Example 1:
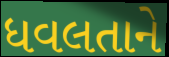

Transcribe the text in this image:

ધવલતાને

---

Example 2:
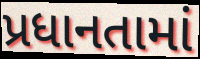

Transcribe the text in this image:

પ્રધાનતામાં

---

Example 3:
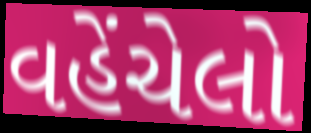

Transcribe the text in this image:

વહેંચેલો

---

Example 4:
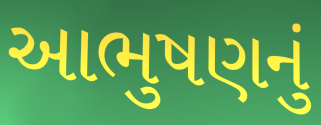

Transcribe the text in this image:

આભુષણનું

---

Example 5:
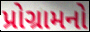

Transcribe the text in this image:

પ્રોગ્રામનો